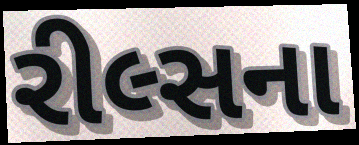
રીલ્સના